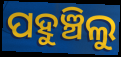
ପହୁଞ୍ଚିଲୁ